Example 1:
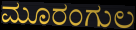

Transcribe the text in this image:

ಮೂರಂಗುಲ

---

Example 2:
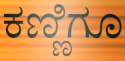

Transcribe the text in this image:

ಕಣ್ಣಿಗೂ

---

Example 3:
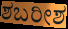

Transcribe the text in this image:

ಶಬರೀಶ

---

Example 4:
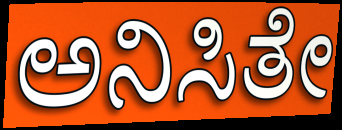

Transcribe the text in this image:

ಅನಿಸಿತೇ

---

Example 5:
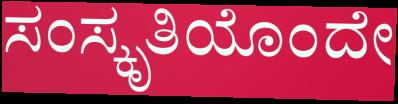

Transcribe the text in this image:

ಸಂಸ್ಕೃತಿಯೊಂದೇ